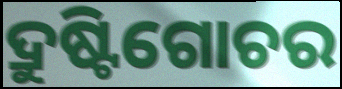
ଦ୍ରୁଷ୍ଟିଗୋଚର